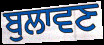
ਬੁਲਾਵਣ